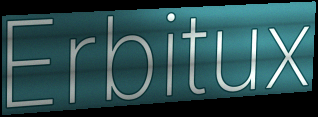
Erbitux